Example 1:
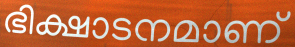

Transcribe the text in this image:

ഭിക്ഷാടനമാണ്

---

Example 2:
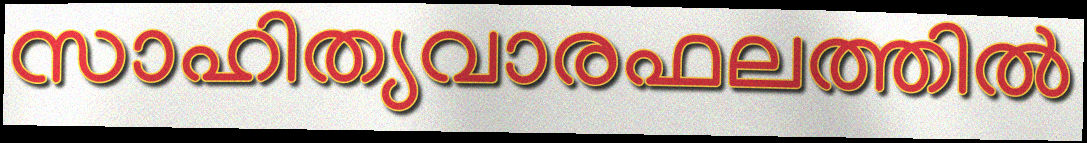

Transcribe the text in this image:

സാഹിത്യവാരഫലത്തിൽ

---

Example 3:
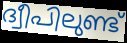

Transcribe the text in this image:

ദ്വീപിലുണ്ട്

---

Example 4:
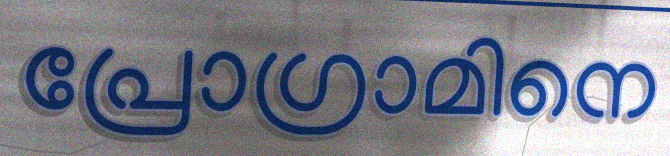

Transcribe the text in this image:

പ്രോഗ്രാമിനെ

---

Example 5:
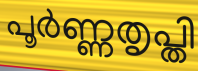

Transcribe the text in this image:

പൂർണ്ണതൃപ്തി